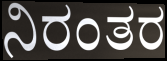
ನಿರಂತರ